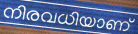
നിരവധിയാണ്